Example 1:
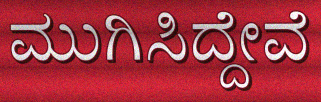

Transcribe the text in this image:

ಮುಗಿಸಿದ್ದೇವೆ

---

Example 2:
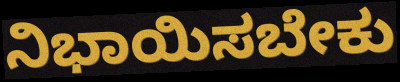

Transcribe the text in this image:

ನಿಭಾಯಿಸಬೇಕು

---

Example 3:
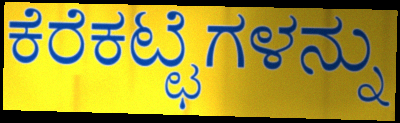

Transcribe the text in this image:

ಕೆರೆಕಟ್ಟೆಗಳನ್ನು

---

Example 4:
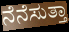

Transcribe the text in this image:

ನೆನೆಸುತ್ತಾ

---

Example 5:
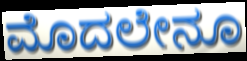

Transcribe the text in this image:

ಮೊದಲೇನೂ